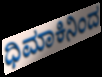
ಧಿಮಾಕಿನಿಂದ